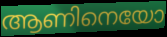
ആണിനെയോ